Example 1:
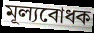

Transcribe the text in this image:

মূল্যবোধক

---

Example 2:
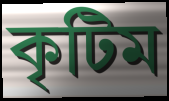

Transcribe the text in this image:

কৃটিম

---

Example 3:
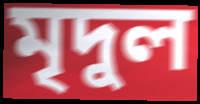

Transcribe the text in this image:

মৃদুল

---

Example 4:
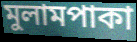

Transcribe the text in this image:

মুলামপাকা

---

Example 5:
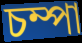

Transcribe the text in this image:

চম্পা